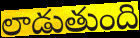
లాడుతుంది